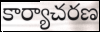
కార్యాచరణ